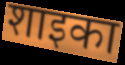
शाइका